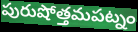
పురుషోత్తమపట్నం